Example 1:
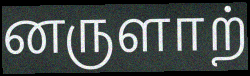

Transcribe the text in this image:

னருளாற்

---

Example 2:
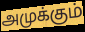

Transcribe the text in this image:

அமுக்கும்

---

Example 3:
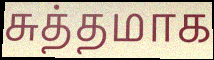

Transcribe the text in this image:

சுத்தமாக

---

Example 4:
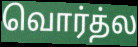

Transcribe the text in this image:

வொர்த்ல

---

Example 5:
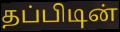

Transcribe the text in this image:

தப்பிடின்